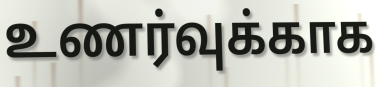
உணர்வுக்காக